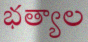
భత్యాల